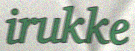
irukke